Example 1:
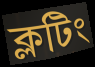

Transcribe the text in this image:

ক্লটিং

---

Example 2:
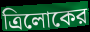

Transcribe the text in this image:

ত্রিলোকের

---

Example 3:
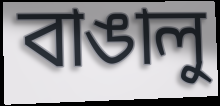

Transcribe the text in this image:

বাঙালু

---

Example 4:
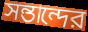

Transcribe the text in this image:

সন্তান্দের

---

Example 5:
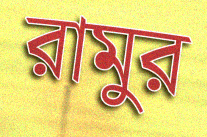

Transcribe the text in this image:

রামুর